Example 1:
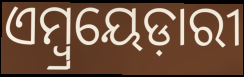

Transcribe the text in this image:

ଏମ୍ୱ୍ରୟେଡ଼ାରୀ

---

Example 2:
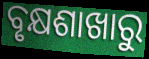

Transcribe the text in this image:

ବୃକ୍ଷଶାଖାରୁ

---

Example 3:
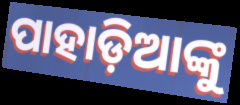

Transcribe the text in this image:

ପାହାଡ଼ିଆଙ୍କୁ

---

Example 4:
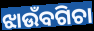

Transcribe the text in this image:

ଝାଉଁବଗିଚା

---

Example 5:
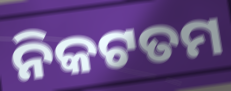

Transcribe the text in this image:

ନିକଟତମ